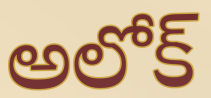
అలోక్